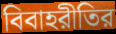
বিবাহরীতির